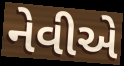
નેવીએ